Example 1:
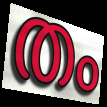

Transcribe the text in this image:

തം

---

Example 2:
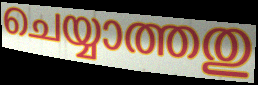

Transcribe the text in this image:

ചെയ്യാത്തതു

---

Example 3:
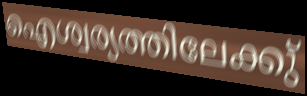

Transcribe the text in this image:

ഐശ്വര്യത്തിലേക്കു്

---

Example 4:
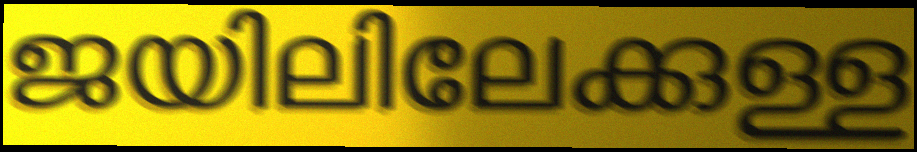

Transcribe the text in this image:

ജയിലിലേക്കുള്ള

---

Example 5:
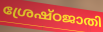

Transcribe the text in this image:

ശ്രേഷ്ഠജാതി